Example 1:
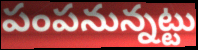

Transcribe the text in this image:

పంపనున్నట్టు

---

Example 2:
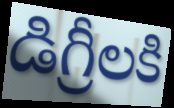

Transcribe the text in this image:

డిగ్రీలకి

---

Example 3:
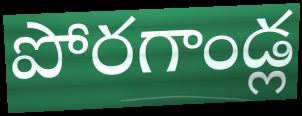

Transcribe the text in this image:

పోరగాండ్ల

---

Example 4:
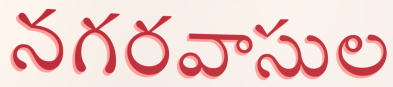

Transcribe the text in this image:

నగరవాసుల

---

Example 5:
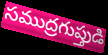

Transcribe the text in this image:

సముద్రగుప్తుడి